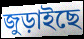
জুড়াইছে